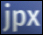
jpx